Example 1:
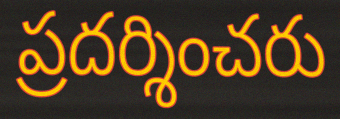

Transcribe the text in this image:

ప్రదర్శించరు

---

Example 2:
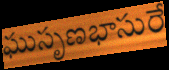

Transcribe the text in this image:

ఘుసృణభాసురే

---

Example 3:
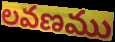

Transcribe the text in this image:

లవణము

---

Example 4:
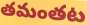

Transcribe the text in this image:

తమంతట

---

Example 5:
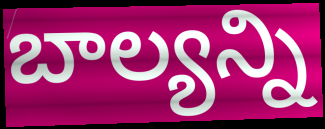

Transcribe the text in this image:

బాల్యన్ని